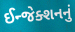
ઈન્જેક્શનનું